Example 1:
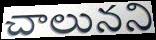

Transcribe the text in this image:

చాలునని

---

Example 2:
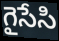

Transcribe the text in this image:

గైసేసి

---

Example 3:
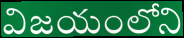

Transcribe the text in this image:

విజయంలోని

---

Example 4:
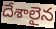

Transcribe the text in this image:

దేశాలైన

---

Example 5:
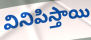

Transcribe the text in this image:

వినిపిస్తాయి